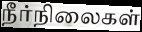
நீர்நிலைகள்